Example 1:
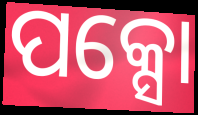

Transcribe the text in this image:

ପକ୍ସୋ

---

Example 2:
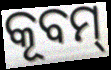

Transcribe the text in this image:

କୂବମ୍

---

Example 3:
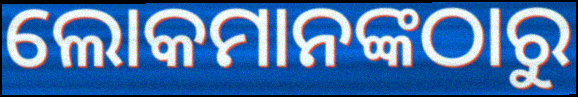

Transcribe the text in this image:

ଲୋକମାନଙ୍କଠାରୁ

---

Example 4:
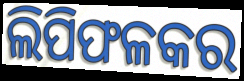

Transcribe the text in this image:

ଲିପିଫଳକର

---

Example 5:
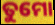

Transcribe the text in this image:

ତୁମୋ